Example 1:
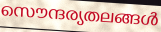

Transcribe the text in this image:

സൌന്ദര്യതലങ്ങൾ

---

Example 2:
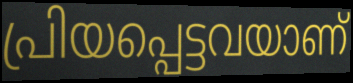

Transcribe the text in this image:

പ്രിയപ്പെട്ടവയാണ്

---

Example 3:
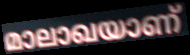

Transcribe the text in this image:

മാലാഖയാണ്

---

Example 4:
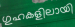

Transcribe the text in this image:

ഗുഹകളിലായി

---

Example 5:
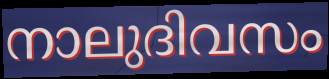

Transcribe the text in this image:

നാലുദിവസം